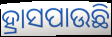
ହ୍ରାସପାଉଛି